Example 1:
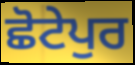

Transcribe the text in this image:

ਛੋਟੇਪੁਰ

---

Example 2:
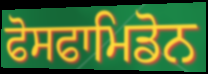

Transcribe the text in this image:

ਫੋਸਫਾਮਿਡੋਨ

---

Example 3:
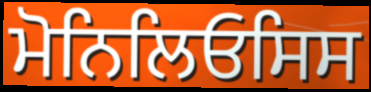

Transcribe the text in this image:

ਮੋਨਿਲਿਓਸਿਸ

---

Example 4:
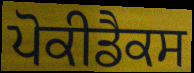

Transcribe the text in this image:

ਪੋਕੀਡੈਕਸ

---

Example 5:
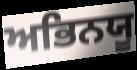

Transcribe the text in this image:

ਅਭਿਨਯੂ